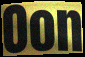
Oon